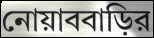
নোয়াববাড়ির